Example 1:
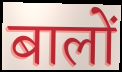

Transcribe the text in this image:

बालों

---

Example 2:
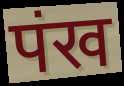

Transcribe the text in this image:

पंख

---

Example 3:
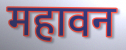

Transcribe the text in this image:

महावन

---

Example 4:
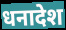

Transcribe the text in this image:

धनादेश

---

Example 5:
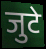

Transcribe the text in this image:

जुटे